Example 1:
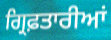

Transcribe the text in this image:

ਗ੍ਰਿਫ਼ਤਾਰੀਆਂ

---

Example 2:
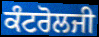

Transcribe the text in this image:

ਕੰਟਰੋਲਜੀ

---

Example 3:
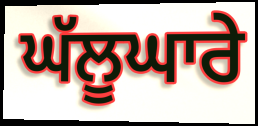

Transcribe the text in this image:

ਘੱਲੂਘਾਰੇ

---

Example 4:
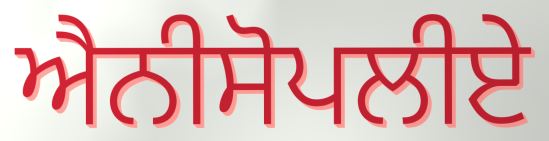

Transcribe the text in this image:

ਐਨੀਸੋਪਲੀਏ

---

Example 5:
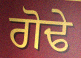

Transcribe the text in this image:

ਗੋਢੇ